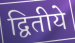
द्वितीये